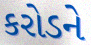
કરોડને